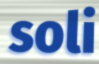
soli